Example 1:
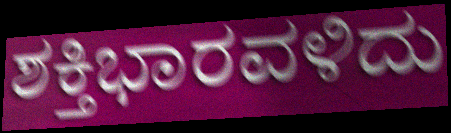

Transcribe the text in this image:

ಶಕ್ತಿಭಾರವಳಿದು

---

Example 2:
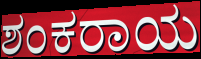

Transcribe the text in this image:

ಶಂಕರಾಯ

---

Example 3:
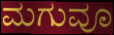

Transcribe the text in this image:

ಮಗುವೂ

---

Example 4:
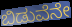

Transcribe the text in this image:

ಬಿಡುವೆನೇ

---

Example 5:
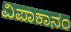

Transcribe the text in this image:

ವಿಪಾಕಾನಂ